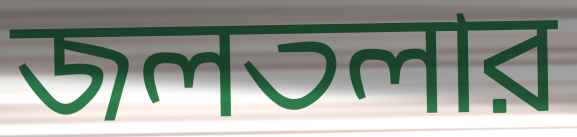
জলতলার